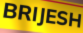
BRIJESH